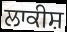
ਲਾਕੀਸ਼